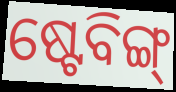
ଷ୍ଟେବିଙ୍ଗ୍